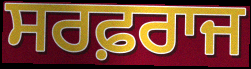
ਸਰਫ਼ਰਾਜ